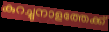
കുറച്ചുനാളത്തേക്ക്